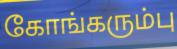
கோங்கரும்பு